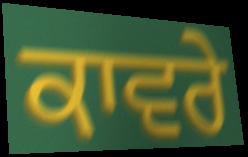
ਕਾਵਰੇ